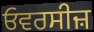
ਓਵਰਸੀਜ਼